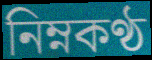
নিম্নকণ্ঠ